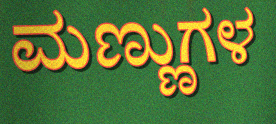
ಮಣ್ಣುಗಳ